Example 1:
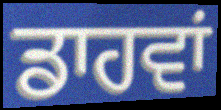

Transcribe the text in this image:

ਡਾਹਵਾਂ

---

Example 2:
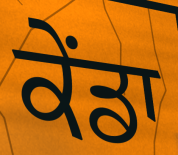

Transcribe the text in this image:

ਕੇਂਡਾ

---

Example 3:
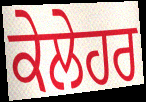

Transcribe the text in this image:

ਕੇਲੇਹਰ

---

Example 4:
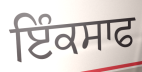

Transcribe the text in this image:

ਇੰਕਸਾਫ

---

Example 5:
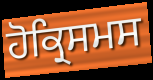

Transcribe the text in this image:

ਹੋਕ੍ਰਿਸਮਸ